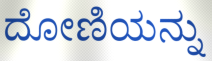
ದೋಣಿಯನ್ನು